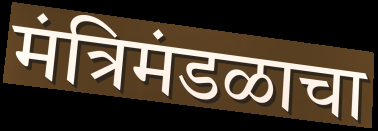
मंत्रिमंडळाचा